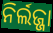
ନିର୍ଲଜ୍ଜା